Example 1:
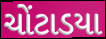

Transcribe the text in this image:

ચોંટાડયા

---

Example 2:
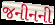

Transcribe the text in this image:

જનીનની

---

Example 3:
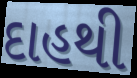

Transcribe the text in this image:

દાહથી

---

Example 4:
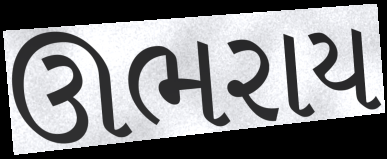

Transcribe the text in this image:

ઊભરાય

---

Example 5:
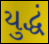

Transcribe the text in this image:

યુદ્ધં